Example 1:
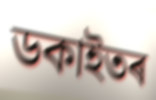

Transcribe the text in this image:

ডকাইতৰ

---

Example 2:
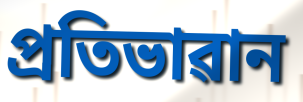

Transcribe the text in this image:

প্ৰতিভাৱান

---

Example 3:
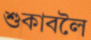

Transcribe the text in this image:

শুকাবলৈ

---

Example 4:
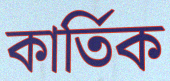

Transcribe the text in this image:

কাৰ্তিক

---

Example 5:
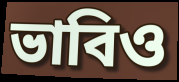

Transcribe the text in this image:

ভাবিও